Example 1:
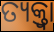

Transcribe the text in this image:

ତ୍ୟକ୍ତ୍ୱା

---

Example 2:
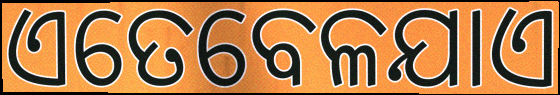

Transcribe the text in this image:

ଏତେବେଳଯାଏ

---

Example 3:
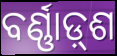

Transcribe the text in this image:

ବର୍ଣ୍ଣାଡ଼୍‌ଶ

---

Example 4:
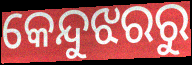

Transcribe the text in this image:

କେନ୍ଦୁଝରରୁ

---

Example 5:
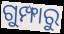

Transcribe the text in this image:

ଗୁମ୍ଫାରୁ